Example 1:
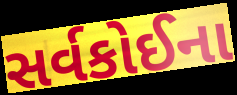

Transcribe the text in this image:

સર્વકોઈના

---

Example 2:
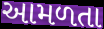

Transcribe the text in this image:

આમળતા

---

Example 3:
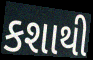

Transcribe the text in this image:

કશાથી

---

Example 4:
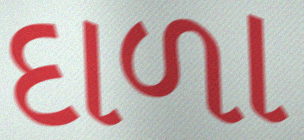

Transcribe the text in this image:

દાળા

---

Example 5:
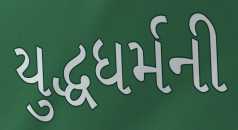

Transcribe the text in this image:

યુદ્ધધર્મની